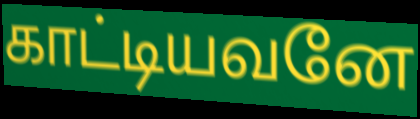
காட்டியவனே